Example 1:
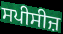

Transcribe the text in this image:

ਸਪੀਸੀਜ਼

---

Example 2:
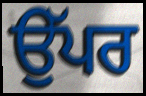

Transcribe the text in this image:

ਉੁੱਪਰ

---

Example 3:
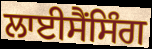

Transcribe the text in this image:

ਲਾਈਸੈਂਸਿੰਗ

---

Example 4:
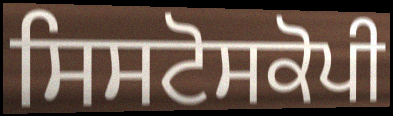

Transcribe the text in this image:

ਸਿਸਟੋਸਕੋਪੀ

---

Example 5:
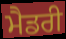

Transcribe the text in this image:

ਮੈਡਰੀ